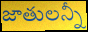
జాతులన్నీ